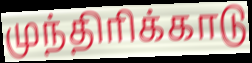
முந்திரிக்காடு